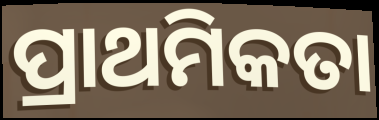
ପ୍ରାଥମିକତା